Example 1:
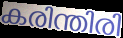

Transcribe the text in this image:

കരിന്തിരി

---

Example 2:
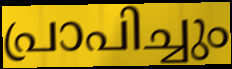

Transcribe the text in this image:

പ്രാപിച്ചും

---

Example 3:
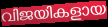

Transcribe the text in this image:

വിജയികളായ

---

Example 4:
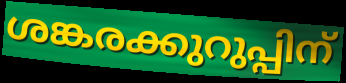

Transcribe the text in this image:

ശങ്കരക്കുറുപ്പിന്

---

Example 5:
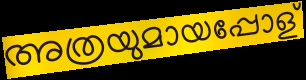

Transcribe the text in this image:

അത്രയുമായപ്പോള്